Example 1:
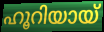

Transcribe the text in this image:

ഹൂറിയായ്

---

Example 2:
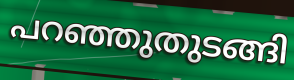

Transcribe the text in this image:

പറഞ്ഞുതുടങ്ങി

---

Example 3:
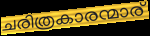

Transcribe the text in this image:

ചരിത്രകാരന്മാര്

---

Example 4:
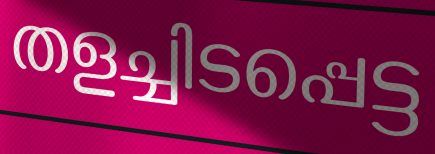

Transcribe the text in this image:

തളച്ചിടപ്പെട്ട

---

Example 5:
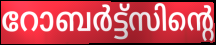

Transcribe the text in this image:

റോബർട്ട്സിന്റെ